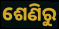
ଶେଣିରୁ